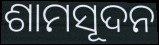
ଶାମସୂଦନ